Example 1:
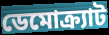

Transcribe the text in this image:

ডেমোক্র্যাট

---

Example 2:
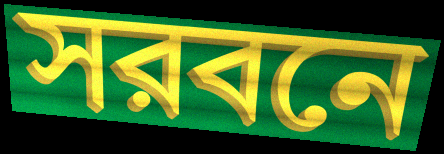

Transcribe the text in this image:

সরবনে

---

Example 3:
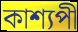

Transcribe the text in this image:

কাশ্যপী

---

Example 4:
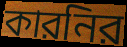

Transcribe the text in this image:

কারনির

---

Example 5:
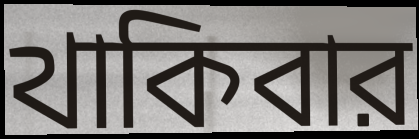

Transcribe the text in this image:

থাকিবার